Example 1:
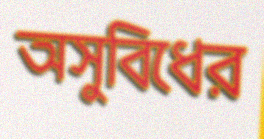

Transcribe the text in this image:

অসুবিধের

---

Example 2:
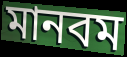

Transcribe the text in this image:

মানবম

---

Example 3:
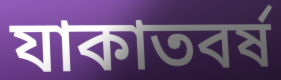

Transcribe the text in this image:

যাকাতবর্ষ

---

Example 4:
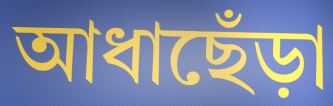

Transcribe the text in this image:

আধাছেঁড়া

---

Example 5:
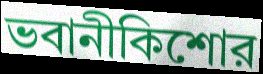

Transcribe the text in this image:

ভবানীকিশোর